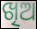
ଖିଅ